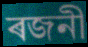
ৰজনী